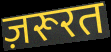
ज़रूरत